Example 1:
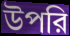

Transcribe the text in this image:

উপরি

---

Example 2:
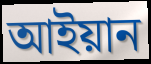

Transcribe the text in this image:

আইয়ান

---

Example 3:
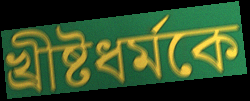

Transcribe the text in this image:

খ্রীষ্টধর্মকে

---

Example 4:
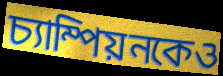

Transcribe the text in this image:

চ্যাম্পিয়নকেও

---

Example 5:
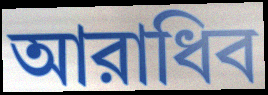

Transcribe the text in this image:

আরাধিব